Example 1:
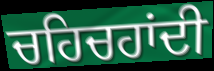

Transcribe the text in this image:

ਚਹਿਚਹਾਂਦੀ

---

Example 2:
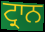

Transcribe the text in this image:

ਟ੍ਰਾਨ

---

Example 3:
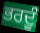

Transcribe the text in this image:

ਭਰਦੂੰ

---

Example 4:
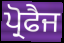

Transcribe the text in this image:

ਪ੍ਰੋਫੈਜ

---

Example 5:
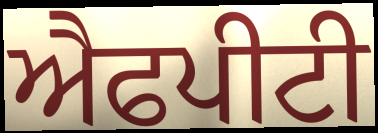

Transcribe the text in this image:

ਐਫਪੀਟੀ